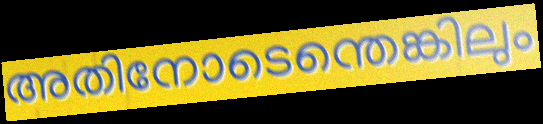
അതിനോടെന്തെങ്കിലും